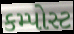
કમ્પોસ્ટ